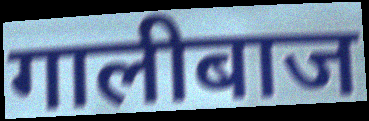
गालीबाज